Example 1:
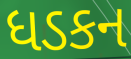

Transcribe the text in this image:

ધડકન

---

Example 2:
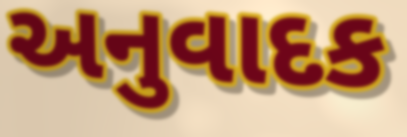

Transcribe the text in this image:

અનુવાદક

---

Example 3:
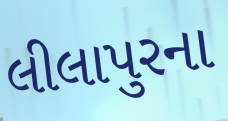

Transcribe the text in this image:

લીલાપુરના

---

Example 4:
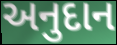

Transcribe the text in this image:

અનુદાન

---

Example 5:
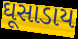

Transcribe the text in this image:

ઘૂસાડાય